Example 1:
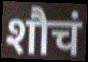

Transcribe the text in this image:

शौचं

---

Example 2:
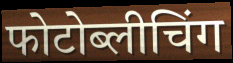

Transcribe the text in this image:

फोटोब्लीचिंग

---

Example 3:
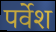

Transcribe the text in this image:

पर्वेश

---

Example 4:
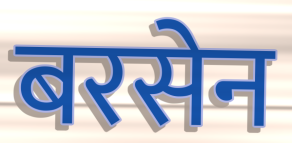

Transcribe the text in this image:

बरसेन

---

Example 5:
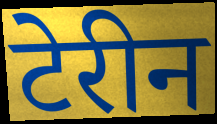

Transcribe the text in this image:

टेरीन